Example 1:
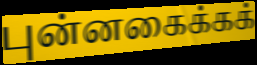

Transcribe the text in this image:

புன்னகைக்கக்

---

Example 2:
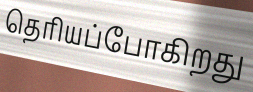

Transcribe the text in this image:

தெரியப்போகிறது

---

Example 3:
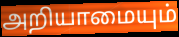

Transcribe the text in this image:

அறியாமையும்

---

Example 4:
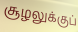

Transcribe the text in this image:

சூழலுக்குப்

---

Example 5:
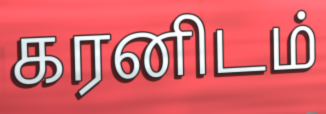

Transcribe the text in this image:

கரனிடம்